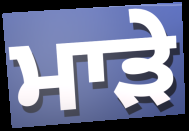
ਮਾੜੇ